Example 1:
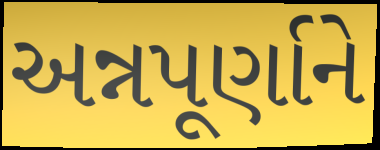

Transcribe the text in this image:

અન્નપૂર્ણાને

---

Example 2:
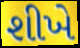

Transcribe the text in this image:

શીખે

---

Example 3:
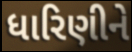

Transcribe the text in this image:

ધારિણીને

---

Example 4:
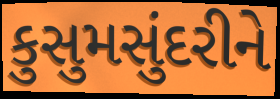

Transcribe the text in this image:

કુસુમસુંદરીને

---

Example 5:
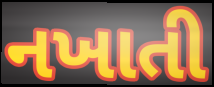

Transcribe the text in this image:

નખાતી